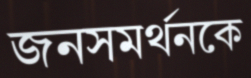
জনসমর্থনকে